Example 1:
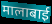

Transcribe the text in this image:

मालाबाई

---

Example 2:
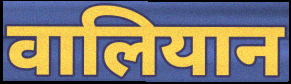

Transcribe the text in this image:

वालियान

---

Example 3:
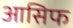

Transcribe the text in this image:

आसिफ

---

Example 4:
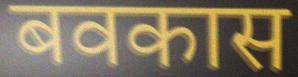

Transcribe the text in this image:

बवकास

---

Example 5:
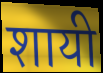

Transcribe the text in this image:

शायी